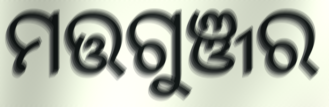
ମତ୍ତଗୁଞ୍ଜର